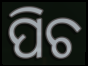
ପିଚ